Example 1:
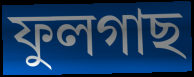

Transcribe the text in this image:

ফুলগাছ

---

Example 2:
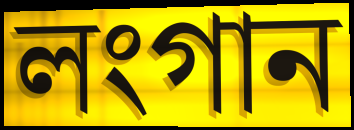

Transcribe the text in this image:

লংগান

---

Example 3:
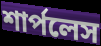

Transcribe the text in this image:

শার্পলেস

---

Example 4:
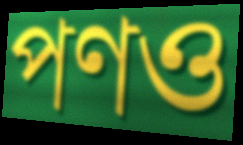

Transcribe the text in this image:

পণও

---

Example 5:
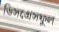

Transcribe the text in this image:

ডিসগ্রেসফুল